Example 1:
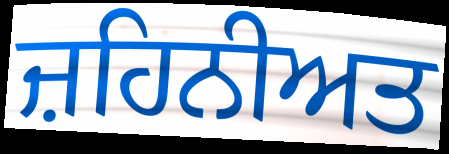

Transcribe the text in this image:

ਜ਼ਹਿਨੀਅਤ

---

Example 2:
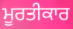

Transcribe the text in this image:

ਮੂਰਤੀਕਾਰ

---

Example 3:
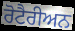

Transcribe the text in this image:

ਰੋਟੈਰੀਅਨ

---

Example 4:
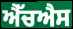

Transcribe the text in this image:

ਐੱਚਐਸ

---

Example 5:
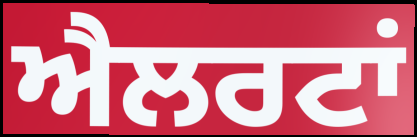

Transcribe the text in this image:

ਐਲਰਟਾਂ